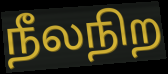
நீலநிற